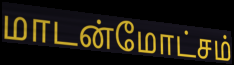
மாடன்மோட்சம்